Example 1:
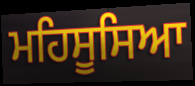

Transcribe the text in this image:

ਮਹਿਸੂਸਿਆ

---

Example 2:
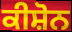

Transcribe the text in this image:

ਕੀਸ਼ੋਨ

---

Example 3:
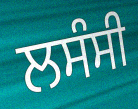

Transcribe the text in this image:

ਲਸੰਸੀ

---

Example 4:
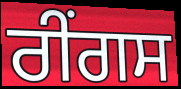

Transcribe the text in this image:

ਰੀਂਗਸ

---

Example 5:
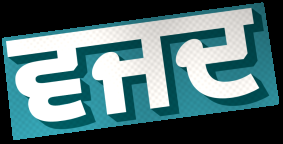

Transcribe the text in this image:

ਵਜਦ